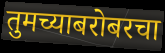
तुमच्याबरोबरचा